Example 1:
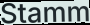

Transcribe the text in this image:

Stamm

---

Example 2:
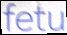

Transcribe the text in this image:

fetu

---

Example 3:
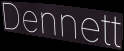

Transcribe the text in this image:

Dennett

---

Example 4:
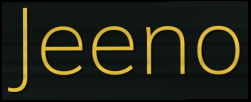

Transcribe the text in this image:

Jeeno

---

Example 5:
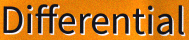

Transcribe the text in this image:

Differential